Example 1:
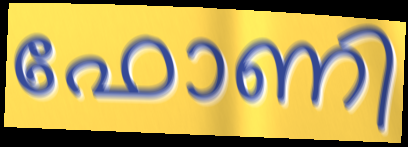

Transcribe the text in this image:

ഫോണി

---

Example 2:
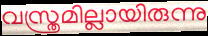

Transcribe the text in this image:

വസ്ത്രമില്ലായിരുന്നു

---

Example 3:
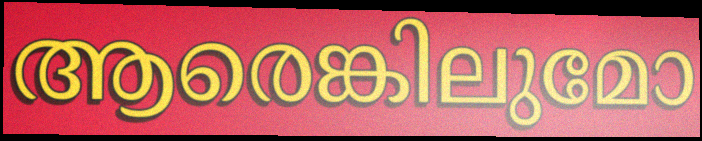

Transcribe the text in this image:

ആരെങ്കിലുമോ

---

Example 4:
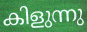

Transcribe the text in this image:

കിളുന്നു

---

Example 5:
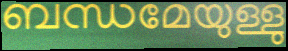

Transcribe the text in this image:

ബന്ധമേയുള്ളു